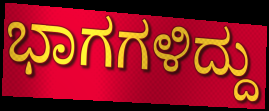
ಭಾಗಗಳಿದ್ದು